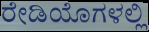
ರೇಡಿಯೊಗಳಲ್ಲಿ